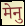
मेनु